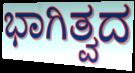
ಭಾಗಿತ್ವದ